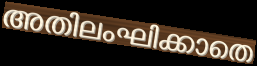
അതിലംഘിക്കാതെ